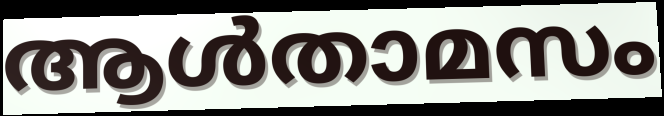
ആൾതാമസം